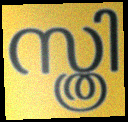
സ്ത്രി